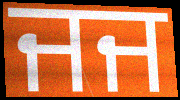
ਜਜ